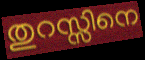
തുറസ്സിനെ